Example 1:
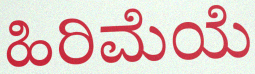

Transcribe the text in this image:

ಹಿರಿಮೆಯೆ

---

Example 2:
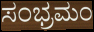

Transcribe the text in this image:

ಸಂಭ್ರಮಂ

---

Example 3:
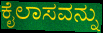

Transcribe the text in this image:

ಕೈಲಾಸವನ್ನು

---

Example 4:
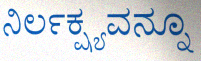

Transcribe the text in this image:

ನಿರ್ಲಕ್ಷ್ಯವನ್ನೂ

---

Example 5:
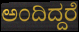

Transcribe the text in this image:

ಅಂದಿದ್ದರೆ